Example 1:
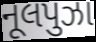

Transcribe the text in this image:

નૂલપુઝા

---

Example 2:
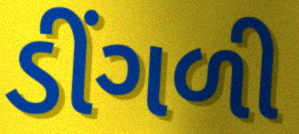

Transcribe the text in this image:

ડીંગળી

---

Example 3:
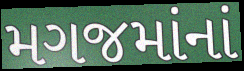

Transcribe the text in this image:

મગજમાંનાં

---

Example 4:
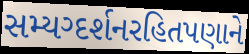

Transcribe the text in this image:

સમ્યગ્દર્શનરહિતપણાને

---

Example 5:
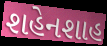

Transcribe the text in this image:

શહેનશાહ